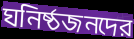
ঘনিষ্ঠজনদের